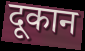
दूकान